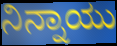
ನಿನ್ನಾಯು